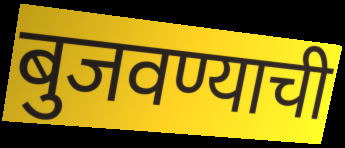
बुजवण्याची